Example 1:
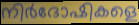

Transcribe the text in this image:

നിർദോഷികളെ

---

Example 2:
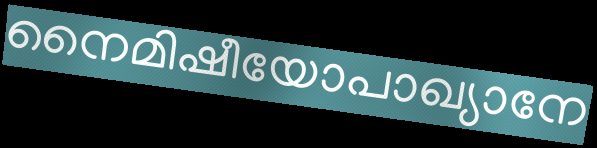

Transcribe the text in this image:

നൈമിഷീയോപാഖ്യാനേ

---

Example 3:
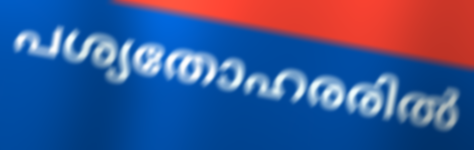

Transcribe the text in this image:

പശ്യതോഹരരിൽ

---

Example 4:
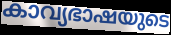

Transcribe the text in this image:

കാവ്യഭാഷയുടെ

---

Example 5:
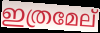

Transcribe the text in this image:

ഇത്രമേല്